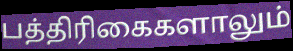
பத்திரிகைகளாலும்